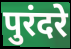
पुरंदरे